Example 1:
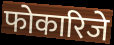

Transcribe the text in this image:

फोकारिजे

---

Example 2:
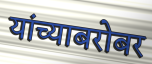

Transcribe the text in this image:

यांच्याबरोबर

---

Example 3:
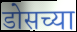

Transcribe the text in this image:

डोसच्या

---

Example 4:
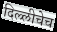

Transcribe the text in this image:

दिल्लीचेच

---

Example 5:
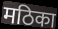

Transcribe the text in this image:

मठिका